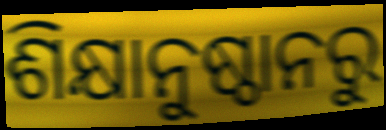
ଶିକ୍ଷାନୁଷ୍ଠାନରୁ